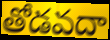
తోడవదా